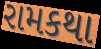
રામકથા